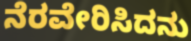
ನೆರವೇರಿಸಿದನು